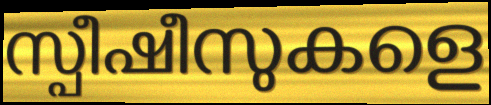
സ്പീഷീസുകളെ